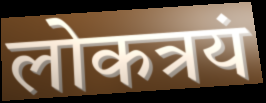
लोकत्रयं